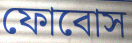
ফোবোস